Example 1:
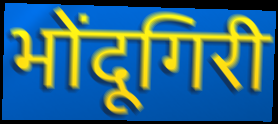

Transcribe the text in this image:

भोंदूगिरी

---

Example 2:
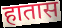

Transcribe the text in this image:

हातास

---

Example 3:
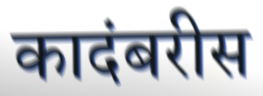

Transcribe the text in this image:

कादंबरीस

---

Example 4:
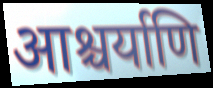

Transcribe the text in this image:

आश्चर्याणि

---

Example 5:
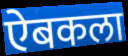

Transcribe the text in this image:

ऐबकला